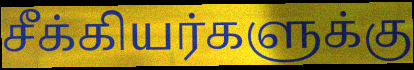
சீக்கியர்களுக்கு